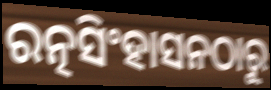
ରତ୍ନସିଂହାସନଠାରୁ